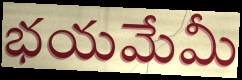
భయమేమీ